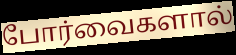
போர்வைகளால்